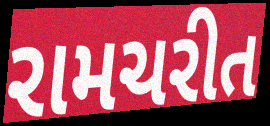
રામચરીત